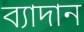
ব্যাদান